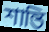
শান্তি